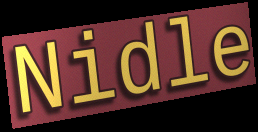
Nidle